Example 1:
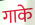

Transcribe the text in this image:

गाके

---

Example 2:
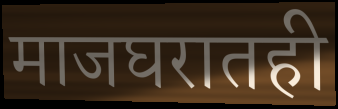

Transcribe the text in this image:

माजघरातही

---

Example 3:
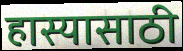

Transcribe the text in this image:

हास्यासाठी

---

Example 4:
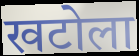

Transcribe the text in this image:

खटोला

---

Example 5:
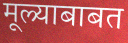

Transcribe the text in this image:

मूल्याबाबत